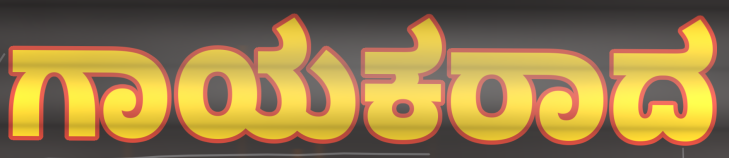
ಗಾಯಕರಾದ